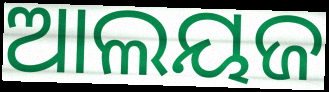
ଆଲୟଜ